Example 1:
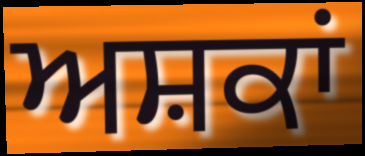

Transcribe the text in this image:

ਅਸ਼ਕਾਂ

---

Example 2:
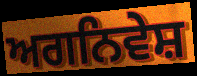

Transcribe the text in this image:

ਅਗਨਿਵੇਸ਼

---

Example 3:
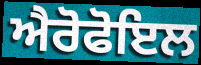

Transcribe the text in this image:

ਐਰੋਫੋਇਲ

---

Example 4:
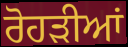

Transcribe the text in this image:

ਰੋਹੜੀਆਂ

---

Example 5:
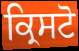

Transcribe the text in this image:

ਕ੍ਰਿਸਟੋ